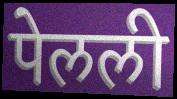
पेलली